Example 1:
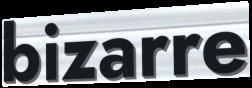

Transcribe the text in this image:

bizarre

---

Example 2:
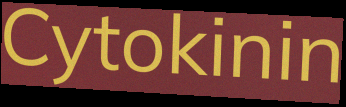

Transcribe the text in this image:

Cytokinin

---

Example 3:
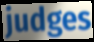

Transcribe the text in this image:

judges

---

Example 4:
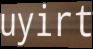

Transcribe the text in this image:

uyirt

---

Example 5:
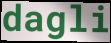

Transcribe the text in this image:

dagli